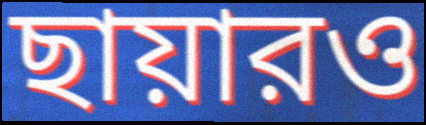
ছায়ারও